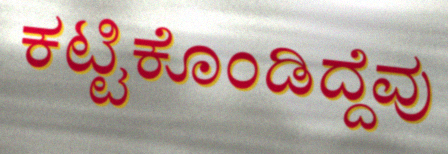
ಕಟ್ಟಿಕೊಂಡಿದ್ದೆವು